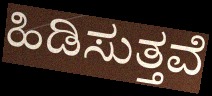
ಹಿಡಿಸುತ್ತವೆ